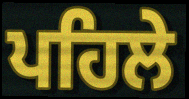
ਪਹਿਲੇ